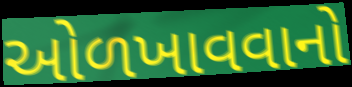
ઓળખાવવાનો